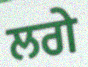
ਲਗੇ